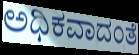
ಅಧಿಕವಾದಂತೆ